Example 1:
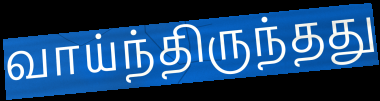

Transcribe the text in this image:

வாய்ந்திருந்தது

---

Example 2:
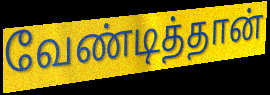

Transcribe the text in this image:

வேண்டித்தான்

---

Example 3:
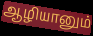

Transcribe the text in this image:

ஆழியானும்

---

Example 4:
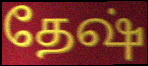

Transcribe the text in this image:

தேஷ்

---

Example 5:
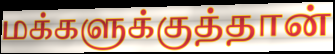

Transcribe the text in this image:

மக்களுக்குத்தான்